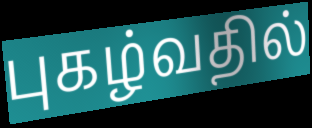
புகழ்வதில்